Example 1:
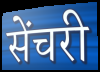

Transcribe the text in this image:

सेंचरी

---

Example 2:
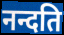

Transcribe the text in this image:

नन्दति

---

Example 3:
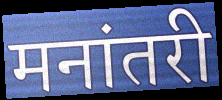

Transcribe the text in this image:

मनांतरी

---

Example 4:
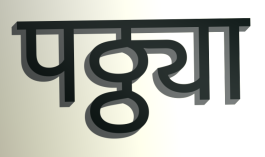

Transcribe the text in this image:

पठ्ठ्या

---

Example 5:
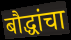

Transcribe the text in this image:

बौद्धांचा